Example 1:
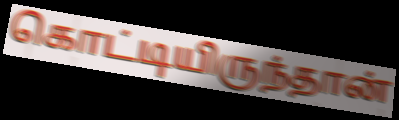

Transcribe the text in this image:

கொட்டியிருந்தான்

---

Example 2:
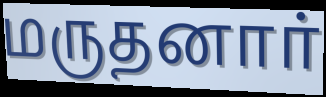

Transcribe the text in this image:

மருதனார்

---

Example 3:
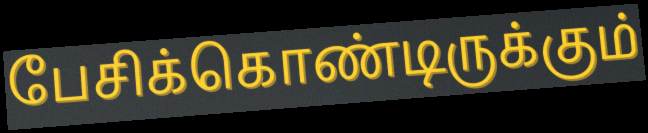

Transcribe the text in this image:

பேசிக்கொண்டிருக்கும்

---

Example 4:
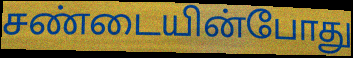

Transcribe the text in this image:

சண்டையின்போது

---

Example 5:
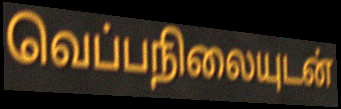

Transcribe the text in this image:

வெப்பநிலையுடன்